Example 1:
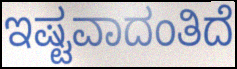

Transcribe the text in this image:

ಇಷ್ಟವಾದಂತಿದೆ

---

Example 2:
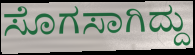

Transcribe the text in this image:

ಸೊಗಸಾಗಿದ್ದು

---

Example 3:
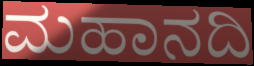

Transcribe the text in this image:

ಮಹಾನದಿ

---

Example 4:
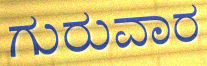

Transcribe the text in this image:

ಗುರುವಾರ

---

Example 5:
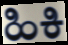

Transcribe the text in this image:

ಹಿಕಿ